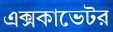
এক্সকাভেটর